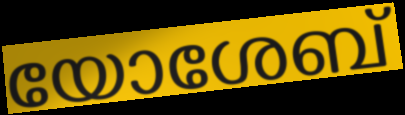
യോശേബ്